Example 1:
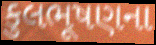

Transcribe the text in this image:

કુલભૂષણના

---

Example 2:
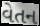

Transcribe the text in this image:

વેતન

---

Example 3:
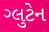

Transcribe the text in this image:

ગ્લુટેન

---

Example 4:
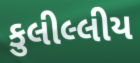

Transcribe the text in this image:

કુલીલ્લીય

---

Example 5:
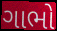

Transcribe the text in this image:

ગાભો